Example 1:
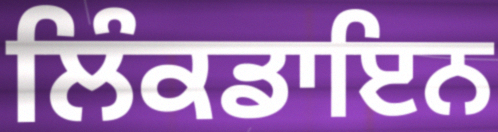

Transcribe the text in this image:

ਲਿੰਕਡਾਇਨ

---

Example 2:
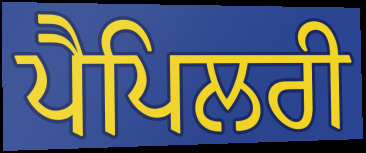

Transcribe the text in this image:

ਪੈਪਿਲਰੀ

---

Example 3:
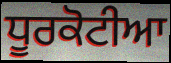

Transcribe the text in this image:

ਧੂਰਕੋਟੀਆ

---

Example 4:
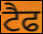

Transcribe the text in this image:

ਟੈਫ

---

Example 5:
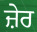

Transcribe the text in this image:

ਜ਼ੇਰ